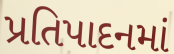
પ્રતિપાદનમાં